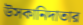
উসকানিদাতার